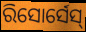
ରିସୋର୍ସେସ୍